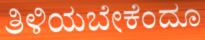
ತಿಳಿಯಬೇಕೆಂದೂ